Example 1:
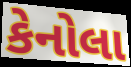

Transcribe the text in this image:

કેનોલા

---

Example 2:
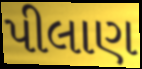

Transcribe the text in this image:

પીલાણ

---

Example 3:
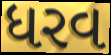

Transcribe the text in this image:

ધરવ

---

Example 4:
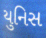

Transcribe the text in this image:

યુનિસ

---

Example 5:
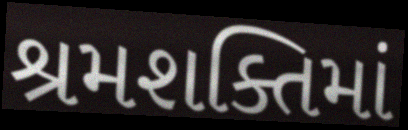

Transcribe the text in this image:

શ્રમશક્તિમાં